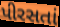
પીરસતાં